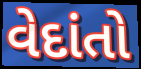
વેદાંતો